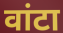
वांटा